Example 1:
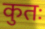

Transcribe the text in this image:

कुतः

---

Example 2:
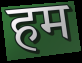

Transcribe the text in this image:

हम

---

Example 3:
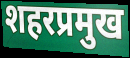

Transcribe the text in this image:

शहरप्रमुख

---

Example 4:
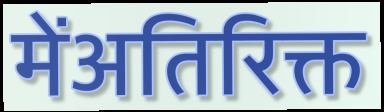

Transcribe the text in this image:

मेंअतिरिक्त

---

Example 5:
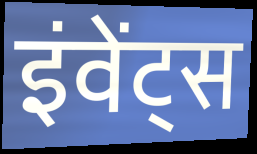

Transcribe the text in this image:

इंवेंट्स